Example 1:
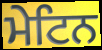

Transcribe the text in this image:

ਮੇਟਿਨ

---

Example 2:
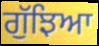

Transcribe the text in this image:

ਗੁੱਝਿਆ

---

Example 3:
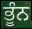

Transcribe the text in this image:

ਭੂੰਨ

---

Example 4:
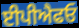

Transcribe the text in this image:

ਈਪੀਐਫਓ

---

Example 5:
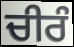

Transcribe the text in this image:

ਚੀਰੰ